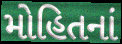
મોહિતનાં